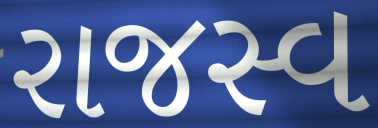
રાજસ્વ